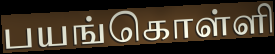
பயங்கொள்ளி